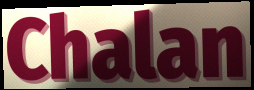
Chalan